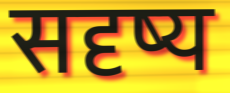
सदृष्य